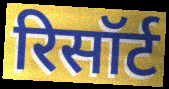
रिसॉर्ट